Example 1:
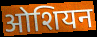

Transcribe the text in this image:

ओशियन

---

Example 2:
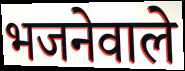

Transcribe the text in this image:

भजनेवाले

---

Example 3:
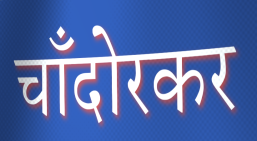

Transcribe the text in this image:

चाँदोरकर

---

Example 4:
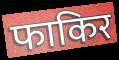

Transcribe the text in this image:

फाकिर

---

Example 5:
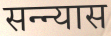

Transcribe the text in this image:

सन्न्यास